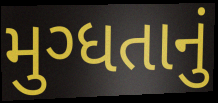
મુગ્ધતાનું